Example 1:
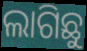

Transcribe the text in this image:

ଲାଗିଛୁ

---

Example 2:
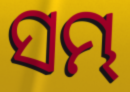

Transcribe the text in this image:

ସମ୍ଭ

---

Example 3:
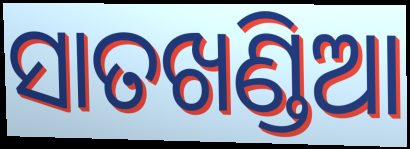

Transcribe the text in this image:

ସାତଖଣ୍ଡିଆ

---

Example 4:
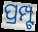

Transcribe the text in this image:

ପ୍ରମ୍ପ୍ଟ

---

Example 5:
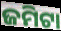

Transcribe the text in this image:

ଜମିଟା